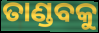
ତାଣ୍ଡବକୁ